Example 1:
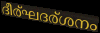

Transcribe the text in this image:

ദീര്ഘദര്ശനം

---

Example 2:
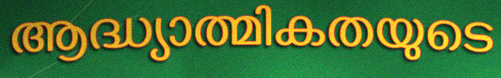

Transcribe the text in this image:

ആദ്ധ്യാത്മികതയുടെ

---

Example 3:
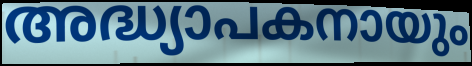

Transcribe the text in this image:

അദ്ധ്യാപകനായും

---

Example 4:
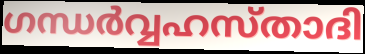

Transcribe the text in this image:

ഗന്ധർവ്വഹസ്താദി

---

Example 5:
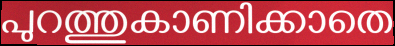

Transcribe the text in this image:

പുറത്തുകാണിക്കാതെ